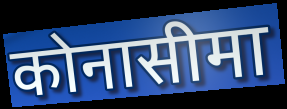
कोनासीमा